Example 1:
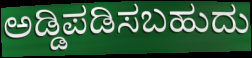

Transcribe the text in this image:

ಅಡ್ಡಿಪಡಿಸಬಹುದು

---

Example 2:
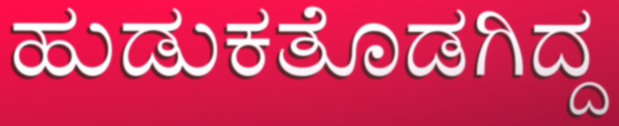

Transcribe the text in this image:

ಹುಡುಕತೊಡಗಿದ್ದ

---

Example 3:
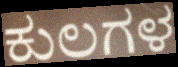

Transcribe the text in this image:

ಕುಲಗಳ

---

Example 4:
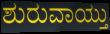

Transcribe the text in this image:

ಶುರುವಾಯ್ತು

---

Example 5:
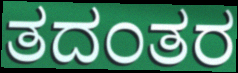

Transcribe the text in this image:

ತದಂತರ